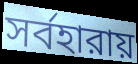
সর্বহারায়